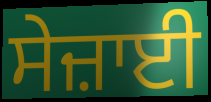
ਸੇਜ਼ਾਈ